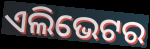
ଏଲିଭେଟର